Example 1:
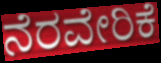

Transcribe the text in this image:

ನೆರವೇರಿಕೆ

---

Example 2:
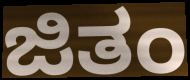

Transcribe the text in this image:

ಜಿತಂ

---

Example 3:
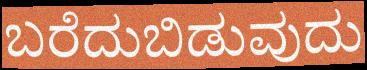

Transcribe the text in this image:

ಬರೆದುಬಿಡುವುದು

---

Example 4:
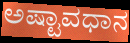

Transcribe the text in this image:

ಅಷ್ಟಾವಧಾನ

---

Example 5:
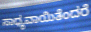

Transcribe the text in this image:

ಸಾಧ್ಯವಾಯಿತೆಂದರೆ